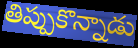
తిప్పుకొన్నాడు